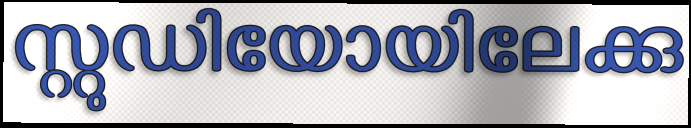
സ്റ്റുഡിയോയിലേക്കു